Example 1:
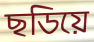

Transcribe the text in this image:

ছডিয়ে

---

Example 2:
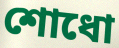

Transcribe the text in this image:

শোধো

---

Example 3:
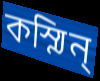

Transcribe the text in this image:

কস্মিন্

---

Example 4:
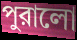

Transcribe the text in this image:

পুরালো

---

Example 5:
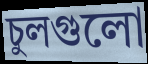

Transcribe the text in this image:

চুলগুলো